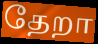
தேறா